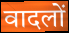
वादलों